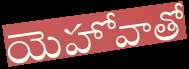
యెహోవాతో